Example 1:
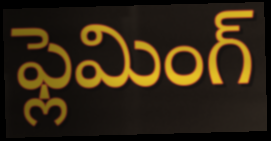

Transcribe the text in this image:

ఫ్లెమింగ్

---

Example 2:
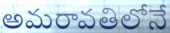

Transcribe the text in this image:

అమరావతిలోనే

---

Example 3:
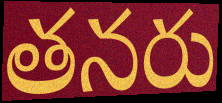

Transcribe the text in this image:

తనరు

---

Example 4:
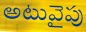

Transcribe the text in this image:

అటువైపు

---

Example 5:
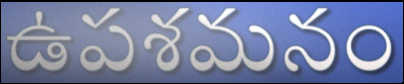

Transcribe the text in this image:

ఉపశమనం